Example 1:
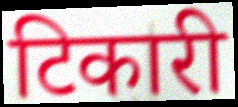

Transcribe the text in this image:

टिकारी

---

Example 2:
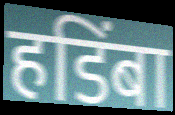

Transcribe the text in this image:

हडिंबा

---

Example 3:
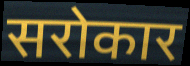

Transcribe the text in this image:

सरोकार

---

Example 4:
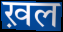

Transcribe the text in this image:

ख़ल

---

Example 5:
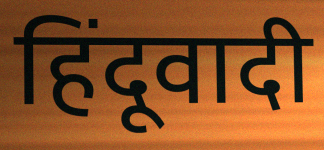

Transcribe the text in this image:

हिंदूवादी